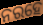
ନରହେ